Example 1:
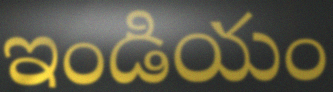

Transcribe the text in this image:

ఇండియం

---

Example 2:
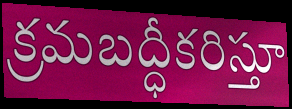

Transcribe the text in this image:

క్రమబద్ధీకరిస్తూ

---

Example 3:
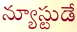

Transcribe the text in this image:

న్యూస్టుడే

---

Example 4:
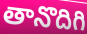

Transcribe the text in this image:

తానొదిగి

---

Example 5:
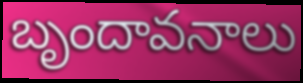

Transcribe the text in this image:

బృందావనాలు